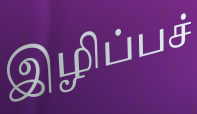
இழிப்பச்